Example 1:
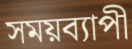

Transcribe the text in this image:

সময়ব্যাপী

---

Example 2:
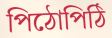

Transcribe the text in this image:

পিঠোপিঠি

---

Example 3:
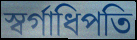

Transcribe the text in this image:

স্বর্গাধিপতি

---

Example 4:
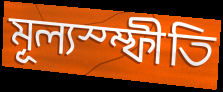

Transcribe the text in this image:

মূল্যস্ম্ফীতি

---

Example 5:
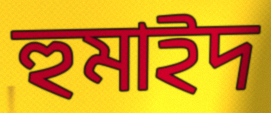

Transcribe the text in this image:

হুমাইদ